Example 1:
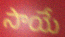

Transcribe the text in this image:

సాయే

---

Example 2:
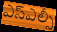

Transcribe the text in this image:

ఎస్ఎల్సీ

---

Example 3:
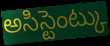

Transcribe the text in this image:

అసిస్టెంట్కు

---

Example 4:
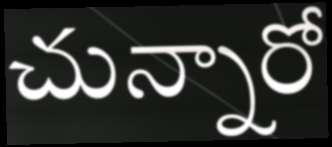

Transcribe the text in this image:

చున్నారో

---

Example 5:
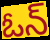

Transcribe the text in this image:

ఓన్